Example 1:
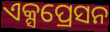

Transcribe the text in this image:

ଏକ୍ସପ୍ରେସନ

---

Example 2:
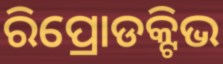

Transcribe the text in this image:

ରିପ୍ରୋଡକ୍ଟିଭ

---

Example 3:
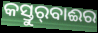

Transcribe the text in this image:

କସ୍ତୁର୍‍ବାଈର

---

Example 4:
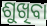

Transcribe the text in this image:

ଶୁଖିବା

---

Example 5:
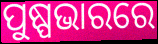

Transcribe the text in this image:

ପୁଷ୍ପଭାରରେ